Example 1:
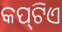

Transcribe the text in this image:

କପ୍‌ଟିଏ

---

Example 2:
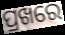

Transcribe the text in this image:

ପ୍ରଖରେ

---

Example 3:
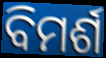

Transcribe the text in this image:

ବିମର୍ଶ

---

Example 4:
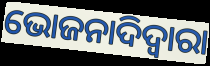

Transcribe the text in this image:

ଭୋଜନାଦିଦ୍ୱାରା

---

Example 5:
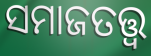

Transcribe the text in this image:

ସମାଜତତ୍ତ୍ୱ